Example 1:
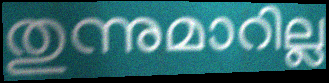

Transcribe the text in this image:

തുന്നുമാറില്ല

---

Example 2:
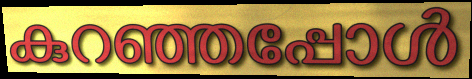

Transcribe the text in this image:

കുറഞ്ഞപ്പോൾ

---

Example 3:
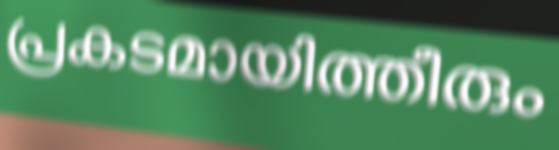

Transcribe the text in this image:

പ്രകടമായിത്തീരും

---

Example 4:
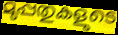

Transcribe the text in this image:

മുപ്പതുകളുടെ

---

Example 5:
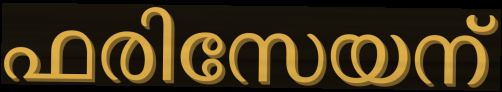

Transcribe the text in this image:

ഫരിസേയന്